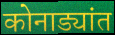
कोनाड्यांत